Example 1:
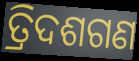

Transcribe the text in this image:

ତ୍ରିଦଶଗଣ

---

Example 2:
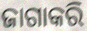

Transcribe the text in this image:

ଜାଗାକରି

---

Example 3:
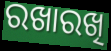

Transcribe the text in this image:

ରଖାରଖି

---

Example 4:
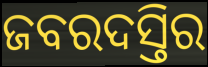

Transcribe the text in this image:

ଜବରଦସ୍ତିର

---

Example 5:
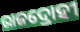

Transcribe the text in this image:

ରାଜଦ୍ରୋହୀ